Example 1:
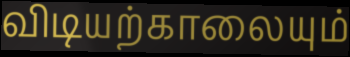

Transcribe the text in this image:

விடியற்காலையும்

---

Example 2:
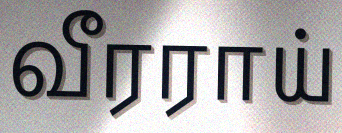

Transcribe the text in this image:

வீரராய்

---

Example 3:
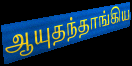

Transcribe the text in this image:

ஆயுதந்தாங்கிய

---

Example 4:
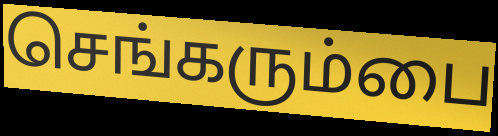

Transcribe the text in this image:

செங்கரும்பை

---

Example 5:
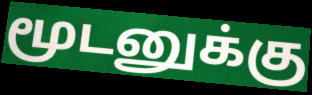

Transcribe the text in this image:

மூடனுக்கு